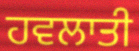
ਹਵਲਾਤੀ